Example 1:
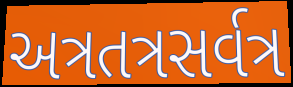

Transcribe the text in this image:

અત્રતત્રસર્વત્ર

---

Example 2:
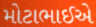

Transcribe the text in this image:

મોટાભાઈએ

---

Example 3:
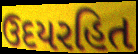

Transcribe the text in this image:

ઉદયરહિત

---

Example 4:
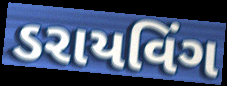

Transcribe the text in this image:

ડરાયવિંગ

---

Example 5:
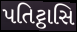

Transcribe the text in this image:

પતિટ્ઠાસિ